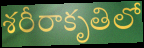
శరీరాకృతిలో